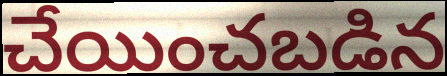
చేయించబడిన